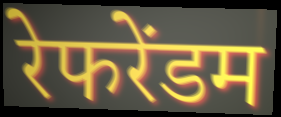
रेफरेंडम